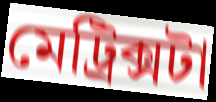
মেট্রিক্সটা